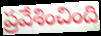
ప్రవేశించింది